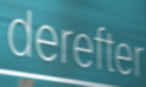
derefter